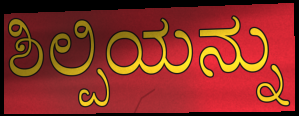
ಶಿಲ್ಪಿಯನ್ನು